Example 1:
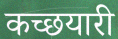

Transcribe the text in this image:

कच्छयारी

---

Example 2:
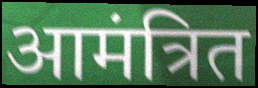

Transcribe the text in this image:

आमंत्रित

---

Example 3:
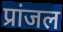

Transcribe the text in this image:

प्रांजल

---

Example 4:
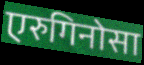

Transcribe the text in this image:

एरुगिनोसा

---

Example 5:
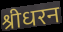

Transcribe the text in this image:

श्रीधरन